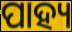
ପାହ୍ୟ